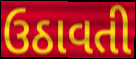
ઉઠાવતી